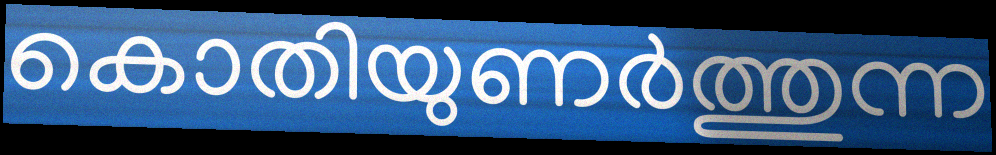
കൊതിയുണർത്തുന്ന